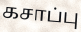
கசாப்பு